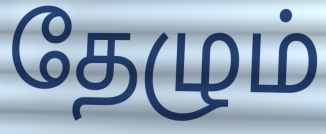
தேழும்